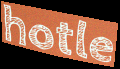
hotle